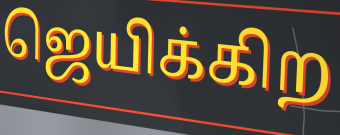
ஜெயிக்கிற